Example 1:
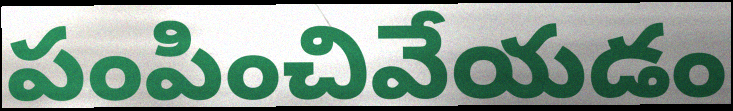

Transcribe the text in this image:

పంపించివేయడం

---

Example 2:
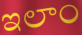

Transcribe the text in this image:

ఇలాం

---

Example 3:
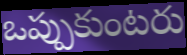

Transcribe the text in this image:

ఒప్పుకుంటరు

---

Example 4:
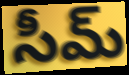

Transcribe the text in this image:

సీమ్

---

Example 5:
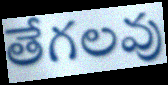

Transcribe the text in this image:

తేగలవు